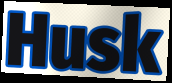
Husk